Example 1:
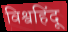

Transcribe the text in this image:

विश्वहिंदू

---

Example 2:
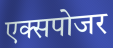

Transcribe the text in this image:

एक्सपोजर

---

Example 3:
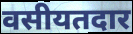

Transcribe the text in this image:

वसीयतदार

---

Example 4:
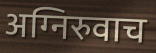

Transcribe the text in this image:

अग्निरुवाच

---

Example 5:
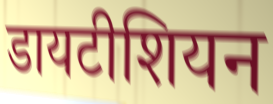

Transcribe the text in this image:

डायटीशियन